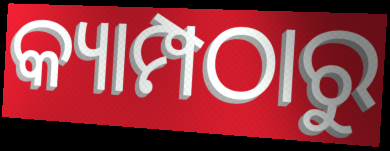
କ୍ୟାମ୍ପଠାରୁ